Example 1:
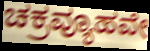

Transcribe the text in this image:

ಚಕ್ರವ್ಯೂಹವೇ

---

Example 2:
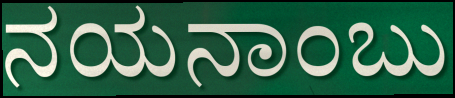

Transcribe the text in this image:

ನಯನಾಂಬು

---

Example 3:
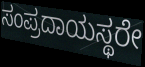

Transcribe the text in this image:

ಸಂಪ್ರದಾಯಸ್ಥರೇ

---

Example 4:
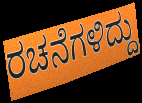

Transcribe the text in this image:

ರಚನೆಗಳಿದ್ದು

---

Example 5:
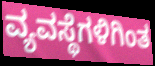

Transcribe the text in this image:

ವ್ಯವಸ್ಥೆಗಳಿಗಿಂತ